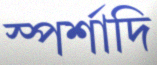
স্পর্শাদি